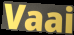
Vaai